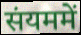
संयममें